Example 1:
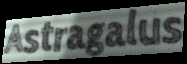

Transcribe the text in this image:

Astragalus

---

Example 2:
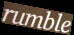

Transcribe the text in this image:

rumble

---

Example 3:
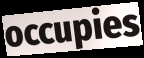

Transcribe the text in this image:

occupies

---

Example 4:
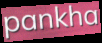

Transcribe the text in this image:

pankha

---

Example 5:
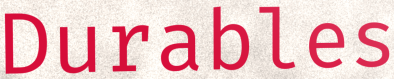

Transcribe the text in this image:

Durables